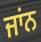
ਜਾਂਨ